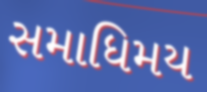
સમાધિમય